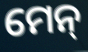
ମେନ୍